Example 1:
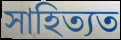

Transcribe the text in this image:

সাহিত্য়ত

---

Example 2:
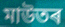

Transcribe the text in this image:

মাউতৰ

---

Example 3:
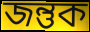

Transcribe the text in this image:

জন্তুক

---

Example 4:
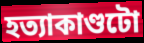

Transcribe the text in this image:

হত্যাকাণ্ডটো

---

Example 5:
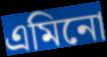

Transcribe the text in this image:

এমিনো